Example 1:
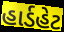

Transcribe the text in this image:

હાર્ડહેટ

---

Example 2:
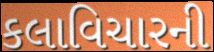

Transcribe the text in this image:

કલાવિચારની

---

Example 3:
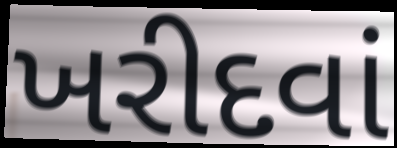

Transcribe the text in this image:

ખરીદવાં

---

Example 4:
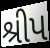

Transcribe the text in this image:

શ્રીપ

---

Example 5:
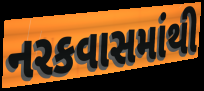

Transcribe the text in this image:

નરકવાસમાંથી